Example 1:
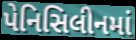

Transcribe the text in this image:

પેનિસિલીનમાં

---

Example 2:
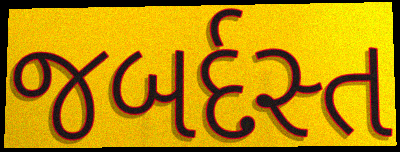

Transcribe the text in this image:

જબર્દસ્ત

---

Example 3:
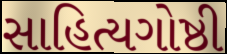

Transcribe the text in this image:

સાહિત્યગોષ્ઠી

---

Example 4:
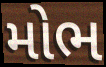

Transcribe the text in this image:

મોભ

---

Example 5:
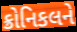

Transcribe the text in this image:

ક્રોનિકલને